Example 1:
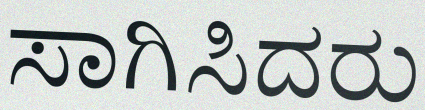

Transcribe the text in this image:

ಸಾಗಿಸಿದರು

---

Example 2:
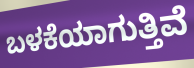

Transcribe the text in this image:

ಬಳಕೆಯಾಗುತ್ತಿವೆ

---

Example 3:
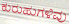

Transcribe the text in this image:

ಕುರುಹುಗಳಿವು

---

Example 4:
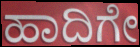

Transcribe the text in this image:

ಹಾದಿಗೇ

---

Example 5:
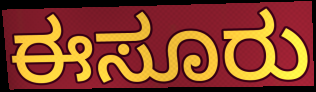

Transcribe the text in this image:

ಈಸೂರು